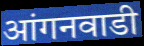
आंगनवाडी